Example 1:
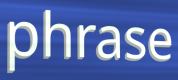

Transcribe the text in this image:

phrase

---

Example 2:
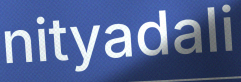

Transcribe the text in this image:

nityadali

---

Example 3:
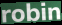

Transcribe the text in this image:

robin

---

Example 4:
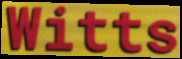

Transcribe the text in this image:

Witts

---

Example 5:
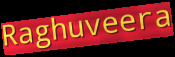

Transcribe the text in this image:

Raghuveera